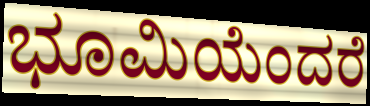
ಭೂಮಿಯೆಂದರೆ